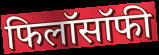
फिलॉसॉफी